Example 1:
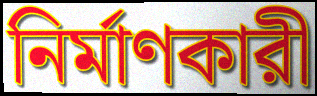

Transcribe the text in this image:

নির্মাণকারী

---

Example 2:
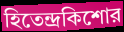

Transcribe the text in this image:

হিতেন্দ্রকিশোর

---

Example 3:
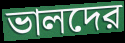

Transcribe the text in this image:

ভালদের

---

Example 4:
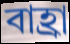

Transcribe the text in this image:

বাহ্রা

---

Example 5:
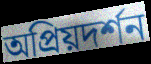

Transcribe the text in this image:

অপ্রিয়দর্শন